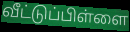
வீட்டுப்பிள்ளை